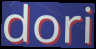
dori